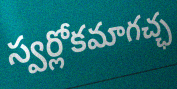
స్వర్లోకమాగచ్ఛ